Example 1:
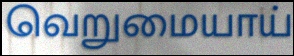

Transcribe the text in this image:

வெறுமையாய்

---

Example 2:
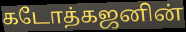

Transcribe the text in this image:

கடோத்கஜனின்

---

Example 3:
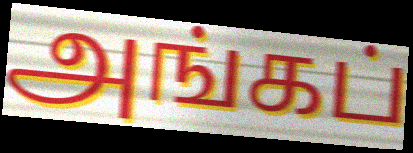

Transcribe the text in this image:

அங்கப்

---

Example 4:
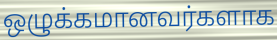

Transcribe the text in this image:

ஒழுக்கமானவர்களாக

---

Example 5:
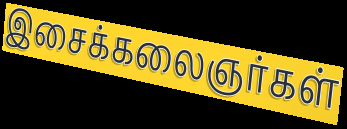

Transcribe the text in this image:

இசைக்கலைஞர்கள்